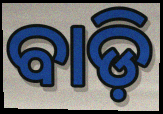
ବାଡ଼ି